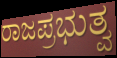
ರಾಜಪ್ರಭುತ್ವ